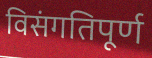
विसंगतिपूर्ण